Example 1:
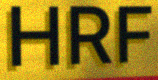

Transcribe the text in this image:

HRF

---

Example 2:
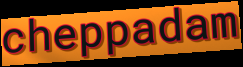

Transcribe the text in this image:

cheppadam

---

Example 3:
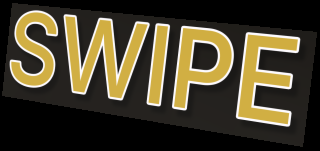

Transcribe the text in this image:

SWIPE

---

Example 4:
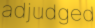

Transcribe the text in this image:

adjudged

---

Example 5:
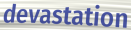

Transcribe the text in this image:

devastation